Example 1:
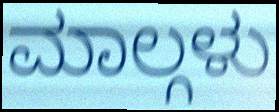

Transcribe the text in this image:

ಮಾಲ್ಗಳು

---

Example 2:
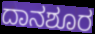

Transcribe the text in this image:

ದಾನಶೂರ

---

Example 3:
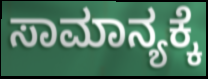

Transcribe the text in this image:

ಸಾಮಾನ್ಯಕ್ಕೆ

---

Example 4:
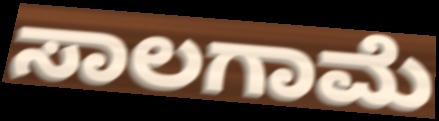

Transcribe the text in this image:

ಸಾಲಗಾಮೆ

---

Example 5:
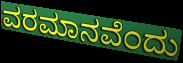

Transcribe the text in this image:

ವರಮಾನವೆಂದು